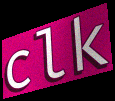
clk